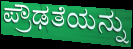
ಪ್ರೌಢತೆಯನ್ನು